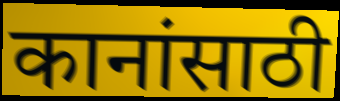
कानांसाठी